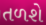
તળશે